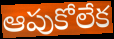
ఆపుకోలేక